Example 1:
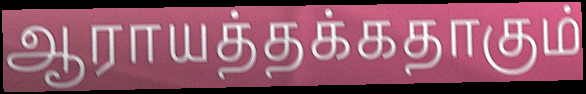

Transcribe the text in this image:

ஆராயத்தக்கதாகும்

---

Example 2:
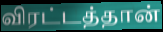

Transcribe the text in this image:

விரட்டத்தான்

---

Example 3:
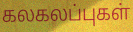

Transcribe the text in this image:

கலகலப்புகள்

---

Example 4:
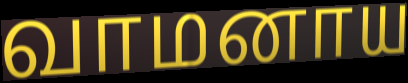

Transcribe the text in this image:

வாமனாய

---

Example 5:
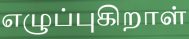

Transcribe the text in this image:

எழுப்புகிறாள்